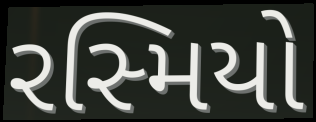
રસ્મિયો